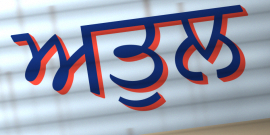
ਅਤੁਲ